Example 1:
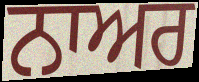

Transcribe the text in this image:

ਨਾਅਰ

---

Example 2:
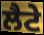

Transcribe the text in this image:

ਲੈਟੇ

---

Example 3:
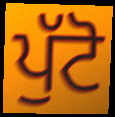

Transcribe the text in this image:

ਪੁੱਟੋ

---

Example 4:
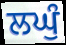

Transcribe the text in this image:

ਲਘੁੰ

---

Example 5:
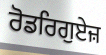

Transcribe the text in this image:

ਰੋਡਰਿਗੁਏਜ਼